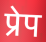
प्रेप